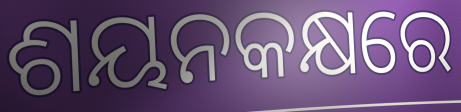
ଶୟନକକ୍ଷରେ